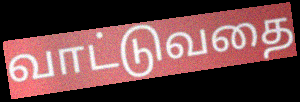
வாட்டுவதை